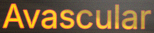
Avascular